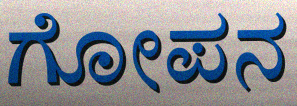
ಗೋಪನ